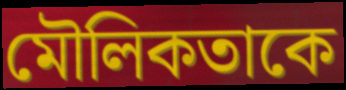
মৌলিকতাকে